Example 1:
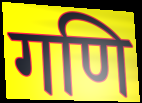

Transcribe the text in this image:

गणि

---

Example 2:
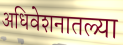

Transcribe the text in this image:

अधिवेशनातल्या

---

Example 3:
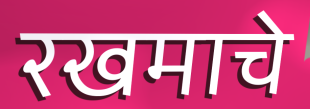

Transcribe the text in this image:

रखमाचे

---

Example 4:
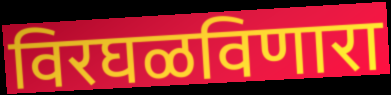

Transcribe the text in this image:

विरघळविणारा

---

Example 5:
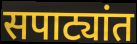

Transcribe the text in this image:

सपाट्यांत